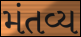
મંતવ્ય